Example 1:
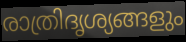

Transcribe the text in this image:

രാത്രിദൃശ്യങ്ങളും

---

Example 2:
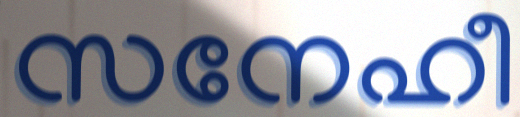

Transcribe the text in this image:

സനേഹീ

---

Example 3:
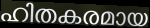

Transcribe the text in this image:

ഹിതകരമായ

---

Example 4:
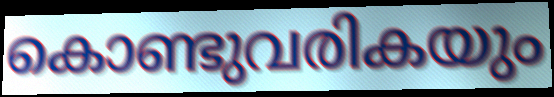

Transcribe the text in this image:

കൊണ്ടുവരികയും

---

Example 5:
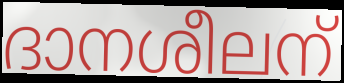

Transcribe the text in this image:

ദാനശീലന്